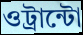
ওট্রান্টো